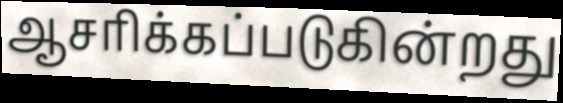
ஆசரிக்கப்படுகின்றது